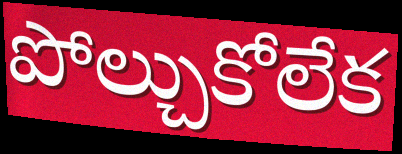
పోల్చుకోలేక